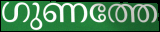
ഗുണത്തേ